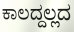
ಕಾಲದ್ದಲ್ಲದ